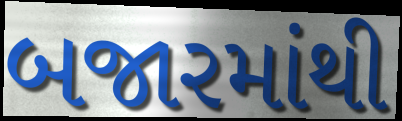
બજારમાંથી